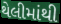
થેલીમાંથી